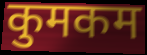
कुमकम